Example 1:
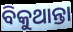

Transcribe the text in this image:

ବିକୁଥାନ୍ତା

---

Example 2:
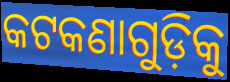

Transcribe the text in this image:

କଟକଣାଗୁଡ଼ିକୁ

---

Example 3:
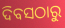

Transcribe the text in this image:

ଦିବସଠାରୁ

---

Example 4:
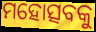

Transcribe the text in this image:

ମହୋତ୍ସବକୁ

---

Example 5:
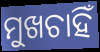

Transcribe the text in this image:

ମୁଖଚାହିଁ